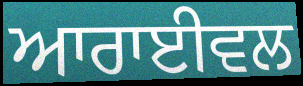
ਆਰਾਈਵਲ